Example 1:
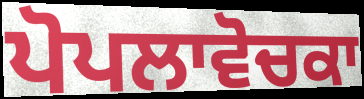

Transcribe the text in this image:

ਪੋਪਲਾਵੋਚਕਾ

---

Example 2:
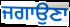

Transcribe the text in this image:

ਜਗਾਉਣਾ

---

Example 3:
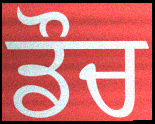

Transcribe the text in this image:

ਡੌਚ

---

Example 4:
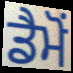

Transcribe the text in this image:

ਡੈਮੋਂ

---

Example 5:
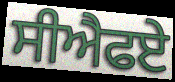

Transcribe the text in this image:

ਸੀਐਫਏ